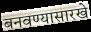
बनवण्यासारखे